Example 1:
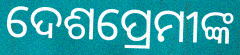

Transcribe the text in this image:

ଦେଶପ୍ରେମୀଙ୍କ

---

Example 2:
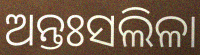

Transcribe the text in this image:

ଅନ୍ତଃସଲିଳା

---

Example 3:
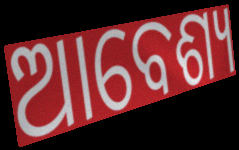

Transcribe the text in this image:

ଆବେଶ୍ୟ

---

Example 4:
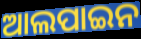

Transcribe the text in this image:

ଆଲପାଇନ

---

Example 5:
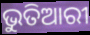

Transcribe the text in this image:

ଭୁତିଆରୀ